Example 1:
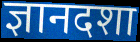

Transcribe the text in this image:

ज्ञानदशा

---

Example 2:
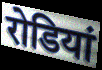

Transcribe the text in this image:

रोडियां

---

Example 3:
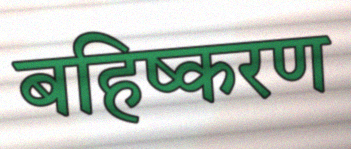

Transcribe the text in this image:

बहिष्करण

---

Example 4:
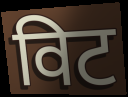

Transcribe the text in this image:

विट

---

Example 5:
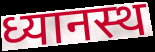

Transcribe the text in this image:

ध्यानस्थ